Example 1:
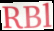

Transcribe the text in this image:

RBl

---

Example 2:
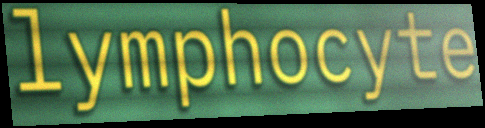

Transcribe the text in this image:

lymphocyte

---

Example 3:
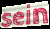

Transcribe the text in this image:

sein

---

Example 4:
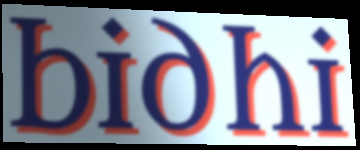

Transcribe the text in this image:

bidhi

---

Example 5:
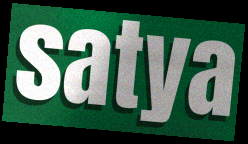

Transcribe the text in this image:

satya